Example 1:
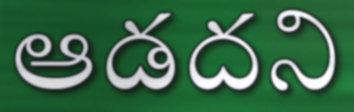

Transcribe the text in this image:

ఆడదని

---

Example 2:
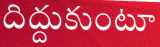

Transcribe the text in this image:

దిద్దుకుంటూ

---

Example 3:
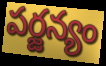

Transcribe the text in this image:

పర్జన్యం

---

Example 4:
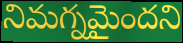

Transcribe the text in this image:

నిమగ్నమైందని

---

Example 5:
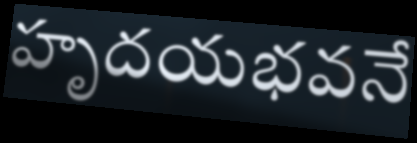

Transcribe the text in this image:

హృదయభవనే